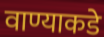
वाण्याकडे